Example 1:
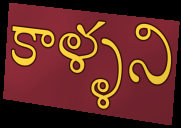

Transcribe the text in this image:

కాళ్ళని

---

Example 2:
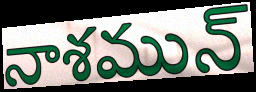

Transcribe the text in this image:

నాశమున్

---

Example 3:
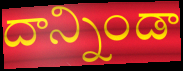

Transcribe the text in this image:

దాన్నిండా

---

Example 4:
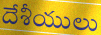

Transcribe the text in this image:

దేశీయులు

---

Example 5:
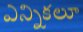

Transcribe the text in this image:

ఎన్నికలూ